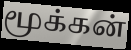
மூக்கன்